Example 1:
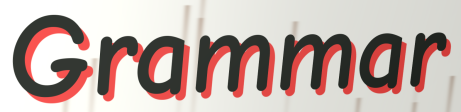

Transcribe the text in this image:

Grammar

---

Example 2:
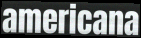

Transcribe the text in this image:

americana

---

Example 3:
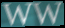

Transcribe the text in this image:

WW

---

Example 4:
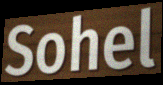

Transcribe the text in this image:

Sohel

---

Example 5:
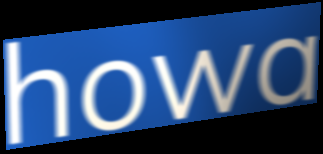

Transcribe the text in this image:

howa